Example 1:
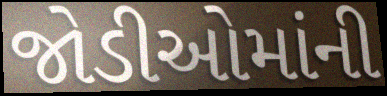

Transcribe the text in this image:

જોડીઓમાંની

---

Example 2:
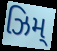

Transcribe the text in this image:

ઝિમ્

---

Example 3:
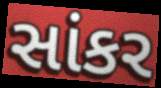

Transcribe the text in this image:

સાંકર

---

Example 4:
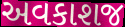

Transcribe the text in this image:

અવકાશજ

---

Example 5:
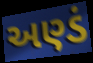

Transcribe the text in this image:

અણ્ડં